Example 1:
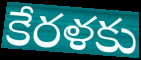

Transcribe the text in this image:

కేరళకు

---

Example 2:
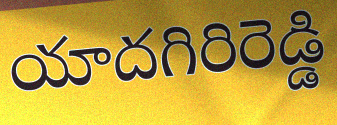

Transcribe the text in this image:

యాదగిరిరెడ్డి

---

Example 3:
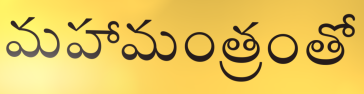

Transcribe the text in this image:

మహామంత్రంతో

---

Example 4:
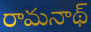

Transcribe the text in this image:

రామనాథ్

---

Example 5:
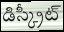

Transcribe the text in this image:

డిస్క్రీట్